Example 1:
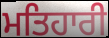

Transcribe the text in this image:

ਮਤਿਹਾਰੀ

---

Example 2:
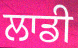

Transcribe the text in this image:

ਲਾਡੀ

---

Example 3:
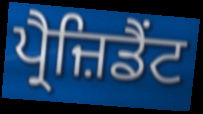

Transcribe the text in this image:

ਪ੍ਰੈਜ਼ਿਡੈਂਟ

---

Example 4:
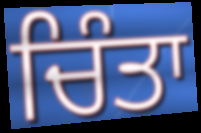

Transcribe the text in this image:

ਚਿੰਤਾ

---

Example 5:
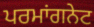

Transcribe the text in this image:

ਪਰਮਾਂਗਨੇਟ